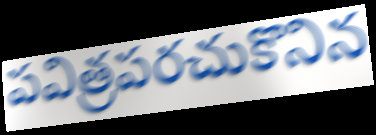
పవిత్రపరచుకొనిన